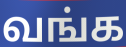
வங்க